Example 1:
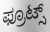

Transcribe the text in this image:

ಫ್ರೂಟ್ಸ್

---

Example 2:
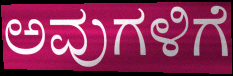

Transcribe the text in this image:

ಅವುಗಳಿಗೆ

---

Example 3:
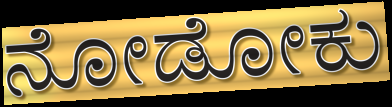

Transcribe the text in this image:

ನೋಡೋಕು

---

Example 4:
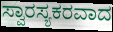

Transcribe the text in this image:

ಸ್ವಾರಸ್ಯಕರವಾದ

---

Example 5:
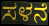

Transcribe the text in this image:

ಸಳನೆ